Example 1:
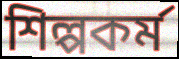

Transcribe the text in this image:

শিল্পকৰ্ম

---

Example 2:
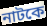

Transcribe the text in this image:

নাটকে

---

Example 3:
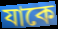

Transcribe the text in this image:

যাকে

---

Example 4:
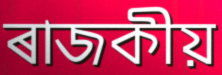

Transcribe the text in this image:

ৰাজকীয়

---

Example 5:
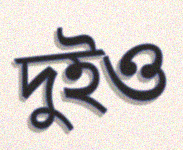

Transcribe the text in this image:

দুইও